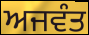
ਅਜਵੰਤ